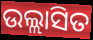
ଉଲ୍ଲାସିତ